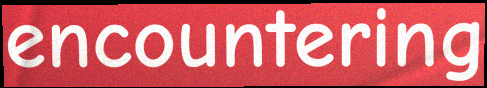
encountering